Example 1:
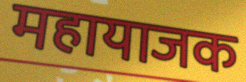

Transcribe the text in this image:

महायाजक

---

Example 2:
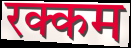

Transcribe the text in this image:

रक्कम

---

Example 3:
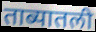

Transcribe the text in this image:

ताब्यातली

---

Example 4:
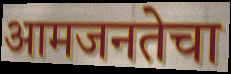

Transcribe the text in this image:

आमजनतेचा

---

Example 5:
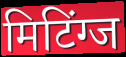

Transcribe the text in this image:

मिटिंग्ज